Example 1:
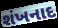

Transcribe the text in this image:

શંખનાદ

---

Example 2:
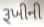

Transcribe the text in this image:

રૂખીની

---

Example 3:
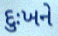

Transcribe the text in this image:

દુઃખને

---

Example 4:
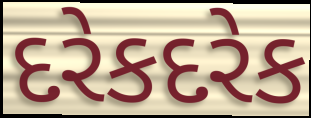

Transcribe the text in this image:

દરેકદરેક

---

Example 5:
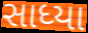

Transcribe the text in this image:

સાધ્યા